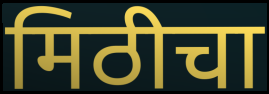
मिठीचा